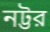
নট্টর